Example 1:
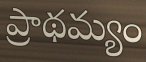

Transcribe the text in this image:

ప్రాథమ్యం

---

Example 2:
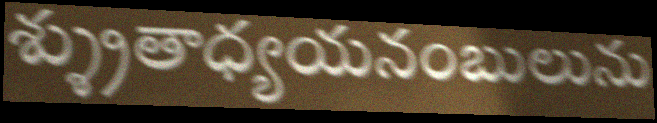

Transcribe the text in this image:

శ్శ్రుతాధ్యయనంబులును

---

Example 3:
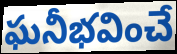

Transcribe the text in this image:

ఘనీభవించే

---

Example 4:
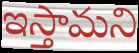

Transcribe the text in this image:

ఇస్తామని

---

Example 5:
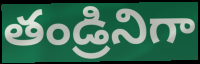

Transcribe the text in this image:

తండ్రినిగా